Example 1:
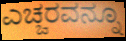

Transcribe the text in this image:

ಎಚ್ಚರವನ್ನೂ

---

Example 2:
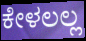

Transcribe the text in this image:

ಕೇಳಲಲ್ಲ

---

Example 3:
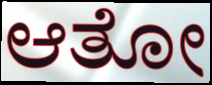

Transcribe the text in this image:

ಆತೋ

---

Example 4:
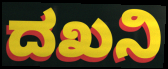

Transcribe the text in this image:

ದಖನಿ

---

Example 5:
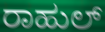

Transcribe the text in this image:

ರಾಹುಲ್